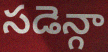
సడెన్గా